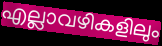
എല്ലാവഴികളിലും